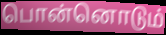
பொன்னொடும்